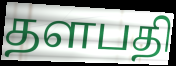
தளபதி